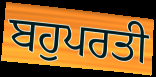
ਬਹੁਪਰਤੀ